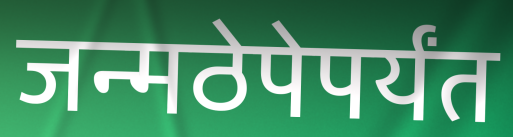
जन्मठेपेपर्यंत